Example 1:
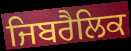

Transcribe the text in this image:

ਜਿਬਰੈਲਿਕ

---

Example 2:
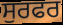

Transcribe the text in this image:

ਸੁਰਫਰ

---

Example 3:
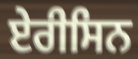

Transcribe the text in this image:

ਏਰੀਸਿਨ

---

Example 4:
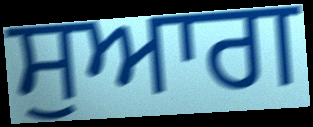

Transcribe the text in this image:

ਸੁਆਗ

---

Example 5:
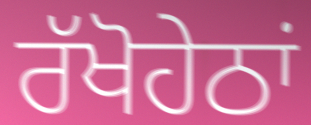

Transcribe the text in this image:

ਰੱਖੋਹੇਠਾਂ